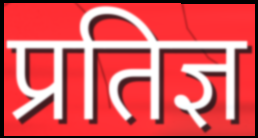
प्रतिज्ञ